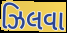
ઝિલવા